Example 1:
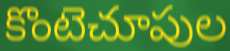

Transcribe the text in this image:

కొంటెచూపుల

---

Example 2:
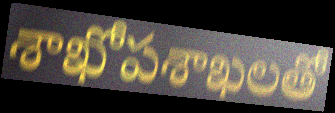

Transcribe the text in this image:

శాఖోపశాఖలతో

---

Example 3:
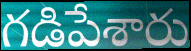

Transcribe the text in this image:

గడిపేశారు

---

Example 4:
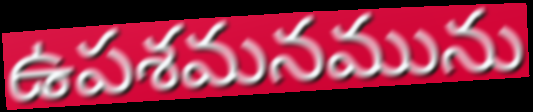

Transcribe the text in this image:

ఉపశమనమును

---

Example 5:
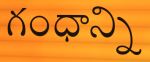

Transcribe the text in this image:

గంధాన్ని